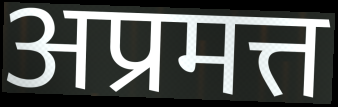
अप्रमत्त